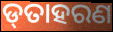
ଡ୍‌ତାହରଣ